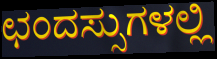
ಛಂದಸ್ಸುಗಳಲ್ಲಿ